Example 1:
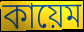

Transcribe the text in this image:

কায়েম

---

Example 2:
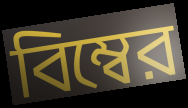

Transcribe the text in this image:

বিম্বের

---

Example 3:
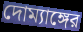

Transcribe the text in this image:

দোম্যাঙ্গের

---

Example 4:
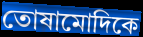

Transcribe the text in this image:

তোষামোদিকে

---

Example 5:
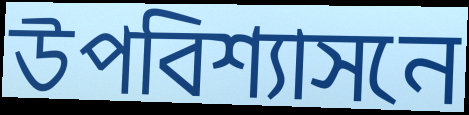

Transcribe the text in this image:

উপবিশ্যাসনে